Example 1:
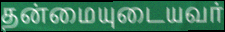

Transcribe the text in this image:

தன்மையுடையவர்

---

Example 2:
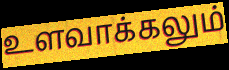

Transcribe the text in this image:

உளவாக்கலும்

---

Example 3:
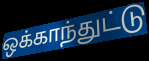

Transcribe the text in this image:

ஒக்காந்துட்டு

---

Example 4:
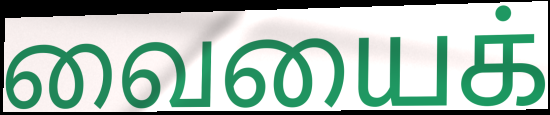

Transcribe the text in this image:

வையைக்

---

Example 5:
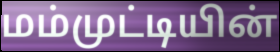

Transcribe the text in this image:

மம்முட்டியின்